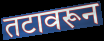
तटावरून